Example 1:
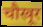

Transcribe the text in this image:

चौखूर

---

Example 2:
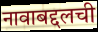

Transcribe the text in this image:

नावाबद्दलची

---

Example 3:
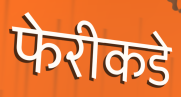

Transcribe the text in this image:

फेरीकडे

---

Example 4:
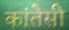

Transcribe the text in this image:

कांतेसी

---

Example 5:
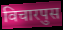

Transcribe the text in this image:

विचारपुस